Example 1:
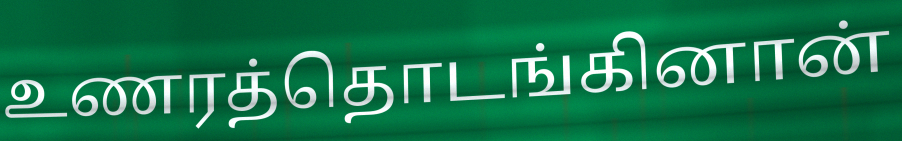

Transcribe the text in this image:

உணரத்தொடங்கினான்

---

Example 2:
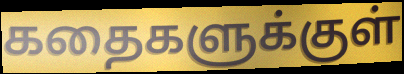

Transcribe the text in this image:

கதைகளுக்குள்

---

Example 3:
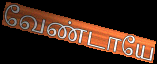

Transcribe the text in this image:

வேண்டாயே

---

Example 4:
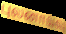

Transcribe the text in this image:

புலனாய்வு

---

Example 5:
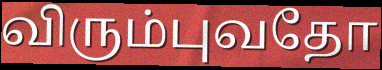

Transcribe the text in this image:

விரும்புவதோ